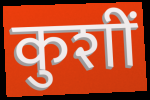
कुशीं